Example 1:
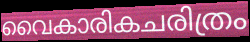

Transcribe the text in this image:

വൈകാരികചരിത്രം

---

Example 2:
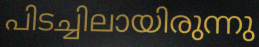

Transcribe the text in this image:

പിടച്ചിലായിരുന്നു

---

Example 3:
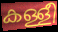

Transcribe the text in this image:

കള്ളീ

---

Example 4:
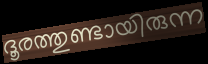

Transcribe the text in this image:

ദൂരത്തുണ്ടായിരുന്ന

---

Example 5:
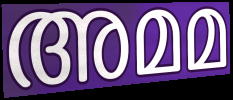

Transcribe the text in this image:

അമമ